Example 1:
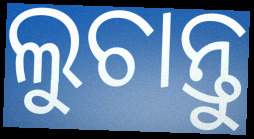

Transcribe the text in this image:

ଲୁଚାନ୍ତୁ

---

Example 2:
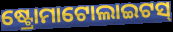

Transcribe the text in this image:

ଷ୍ଟ୍ରୋମାଟୋଲାଇଟସ୍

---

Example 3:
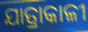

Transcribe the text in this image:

ଯାତ୍ରାକାଳୀ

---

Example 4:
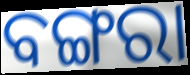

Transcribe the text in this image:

ବଙ୍ଗରା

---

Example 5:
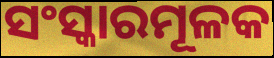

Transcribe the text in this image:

ସଂସ୍କାରମୂଳକ